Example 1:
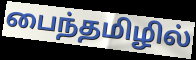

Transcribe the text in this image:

பைந்தமிழில்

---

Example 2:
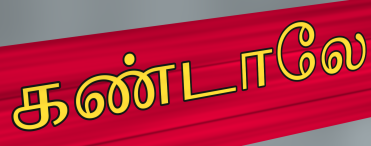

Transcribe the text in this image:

கண்டாலே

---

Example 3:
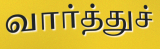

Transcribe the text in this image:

வார்த்துச்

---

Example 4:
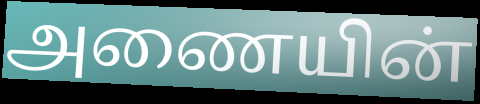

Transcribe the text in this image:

அணையின்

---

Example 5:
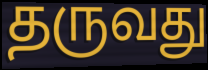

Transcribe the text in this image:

தருவது